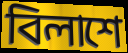
বিলাশে